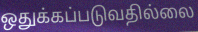
ஒதுக்கப்படுவதில்லை